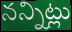
నన్నిట్లు